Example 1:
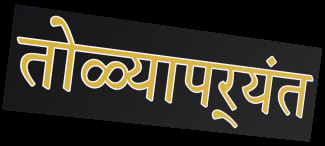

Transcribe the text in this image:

तोळ्यापर्यंत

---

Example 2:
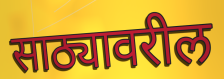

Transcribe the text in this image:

साठ्यावरील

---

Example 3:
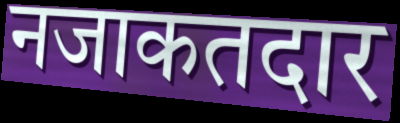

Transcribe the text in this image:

नजाकतदार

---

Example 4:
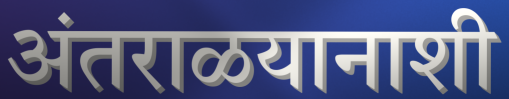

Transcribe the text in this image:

अंतराळयानाशी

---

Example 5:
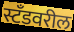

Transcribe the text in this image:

स्टँडवरील